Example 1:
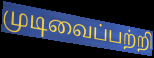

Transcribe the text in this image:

முடிவைப்பற்றி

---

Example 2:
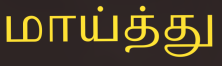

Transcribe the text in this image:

மாய்த்து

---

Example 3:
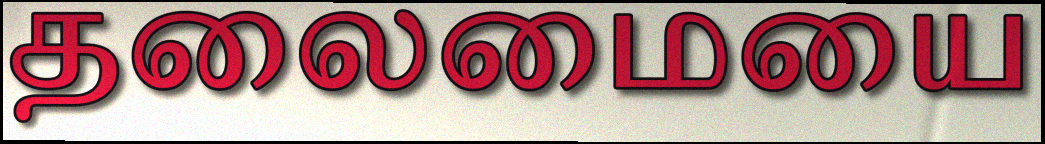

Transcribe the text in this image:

தலைமையை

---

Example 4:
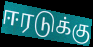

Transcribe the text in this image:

ஈரடுக்கு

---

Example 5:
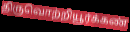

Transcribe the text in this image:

திருவொற்றியூர்க்கண்